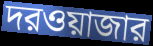
দরওয়াজার